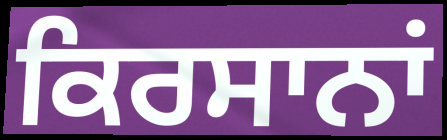
ਕਿਰਸਾਨਾਂ